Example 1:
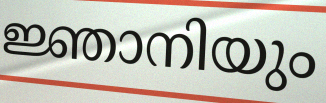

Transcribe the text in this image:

ജ്ഞാനിയും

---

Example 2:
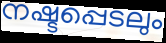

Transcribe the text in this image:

നഷ്ടപ്പെടലും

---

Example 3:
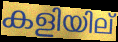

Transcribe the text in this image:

കളിയില്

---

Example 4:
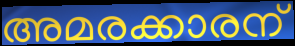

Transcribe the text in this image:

അമരക്കാരന്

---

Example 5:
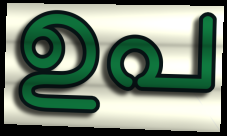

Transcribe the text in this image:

ഉപ